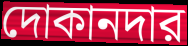
দোকানদার